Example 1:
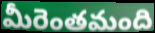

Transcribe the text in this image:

మీరెంతమంది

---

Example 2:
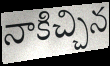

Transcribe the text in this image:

నాకిచ్చిన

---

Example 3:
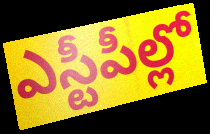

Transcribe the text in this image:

ఎస్టీపీల్లో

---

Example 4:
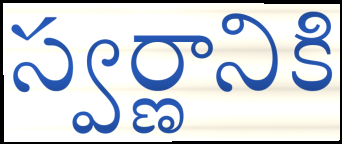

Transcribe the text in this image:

స్వర్ణానికి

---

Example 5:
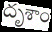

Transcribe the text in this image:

దృశాం